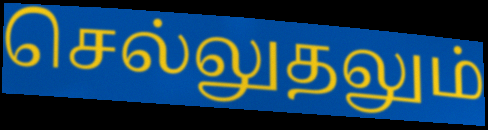
செல்லுதலும்